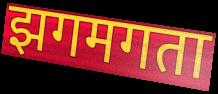
झगमगता